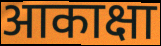
आकाक्षा